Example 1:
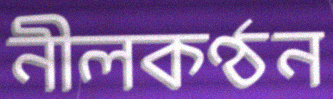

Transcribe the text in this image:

নীলকণ্ঠন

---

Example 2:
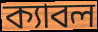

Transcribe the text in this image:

ক্যাবল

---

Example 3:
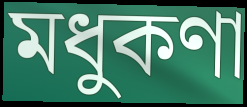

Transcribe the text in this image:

মধুকণা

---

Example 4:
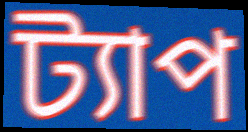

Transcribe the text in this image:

ট্যাপ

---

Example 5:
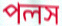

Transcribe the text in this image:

পলস